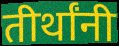
तीर्थांनी